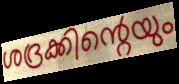
ശദ്രക്കിന്റെയും